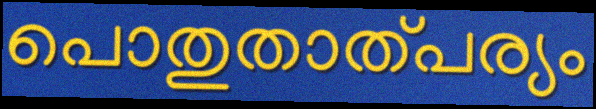
പൊതുതാത്പര്യം